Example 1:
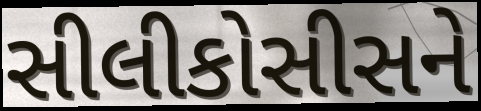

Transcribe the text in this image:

સીલીકોસીસને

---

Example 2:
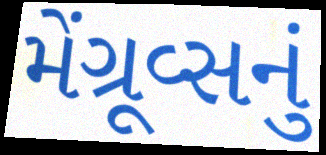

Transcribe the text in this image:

મેંગ્રૂવ્સનું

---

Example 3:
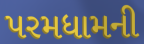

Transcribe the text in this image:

પરમધામની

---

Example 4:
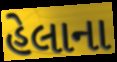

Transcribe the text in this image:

હેલાના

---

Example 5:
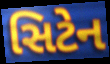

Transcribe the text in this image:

સિટેન